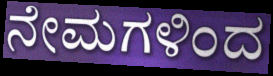
ನೇಮಗಳಿಂದ